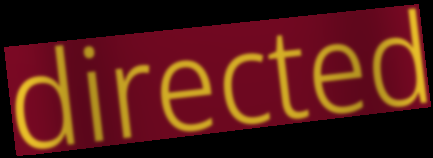
directed